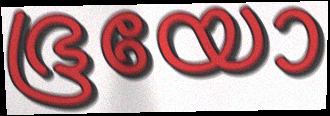
ഭൂയോ